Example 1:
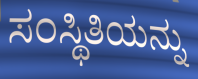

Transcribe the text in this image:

ಸಂಸ್ಥಿತಿಯನ್ನು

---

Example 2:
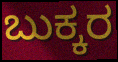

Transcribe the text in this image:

ಬುಕ್ಕರ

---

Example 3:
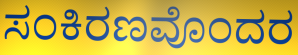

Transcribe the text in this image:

ಸಂಕಿರಣವೊಂದರ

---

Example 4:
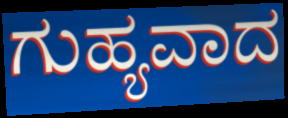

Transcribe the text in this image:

ಗುಹ್ಯವಾದ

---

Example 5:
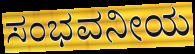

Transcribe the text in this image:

ಸಂಭವನೀಯ